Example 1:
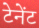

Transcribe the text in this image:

टेनेंट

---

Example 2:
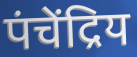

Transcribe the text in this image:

पंचेंद्रिय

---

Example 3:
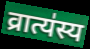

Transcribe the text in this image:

व्रात्य॑स्य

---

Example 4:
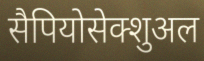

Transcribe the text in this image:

सैपियोसेक्शुअल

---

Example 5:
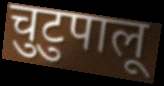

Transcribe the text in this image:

चुटुपालू